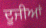
ਦੂਜੀਆਂ